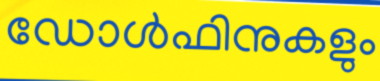
ഡോൾഫിനുകളും